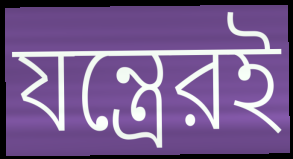
যন্ত্রেরই